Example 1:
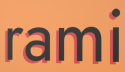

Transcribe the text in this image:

rami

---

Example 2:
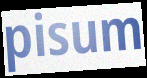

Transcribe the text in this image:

pisum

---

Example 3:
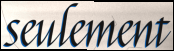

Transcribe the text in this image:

seulement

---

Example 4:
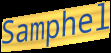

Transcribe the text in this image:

Samphel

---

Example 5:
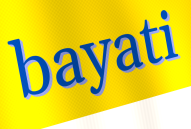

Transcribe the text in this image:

bayati